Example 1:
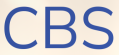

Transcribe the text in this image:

CBS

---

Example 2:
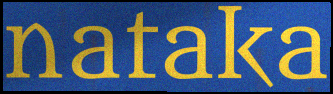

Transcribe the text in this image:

nataka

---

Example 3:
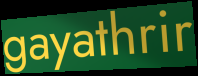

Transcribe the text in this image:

gayathrir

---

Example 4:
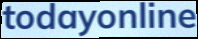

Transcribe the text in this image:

todayonline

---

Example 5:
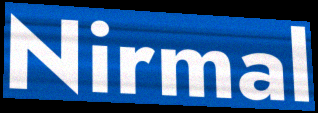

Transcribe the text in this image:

Nirmal